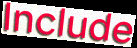
Include